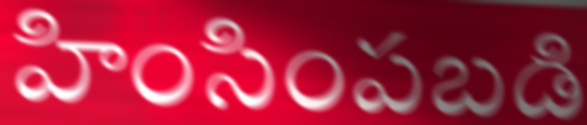
హింసింపబడి